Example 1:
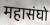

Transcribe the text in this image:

महासंघो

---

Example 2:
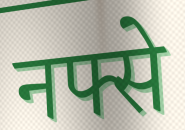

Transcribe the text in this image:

नफ्से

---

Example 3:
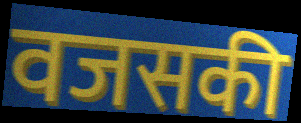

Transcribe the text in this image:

वजसकी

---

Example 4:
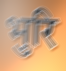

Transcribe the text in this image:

भुरि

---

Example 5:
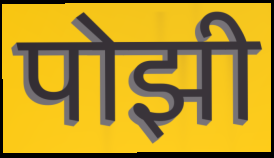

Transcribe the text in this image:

पोझी